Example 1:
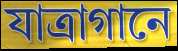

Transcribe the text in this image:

যাত্রাগানে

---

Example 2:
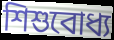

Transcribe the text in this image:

শিশুবোধ্য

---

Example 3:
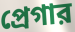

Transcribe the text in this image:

প্রেগার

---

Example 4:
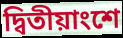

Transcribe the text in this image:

দ্বিতীয়াংশে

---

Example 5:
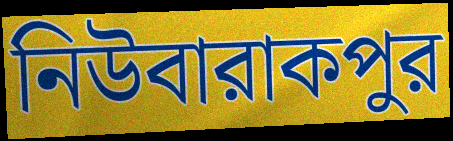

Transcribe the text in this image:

নিউবারাকপুর